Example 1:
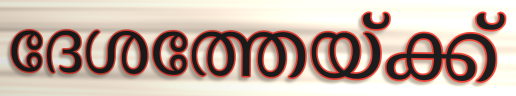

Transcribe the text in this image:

ദേശത്തേയ്ക്ക്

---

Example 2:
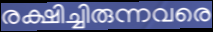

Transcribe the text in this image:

രക്ഷിച്ചിരുന്നവരെ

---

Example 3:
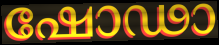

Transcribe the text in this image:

ഷോഢാ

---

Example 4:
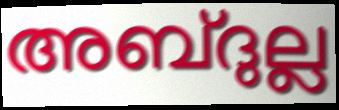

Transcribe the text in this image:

അബ്ദുല്ല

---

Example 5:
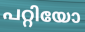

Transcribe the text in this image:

പറ്റിയോ